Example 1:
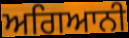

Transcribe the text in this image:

ਅਗਿਆਨੀ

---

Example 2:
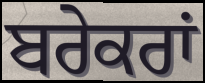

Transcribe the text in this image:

ਬਰੇਕਰਾਂ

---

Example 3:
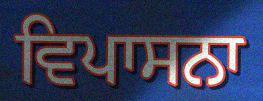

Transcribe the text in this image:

ਵਿਪਾਸਨਾ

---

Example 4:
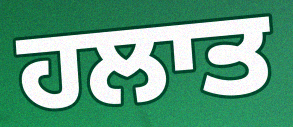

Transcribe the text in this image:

ਹਲਾਤ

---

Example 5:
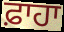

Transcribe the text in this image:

ਫ਼ਾਹਾ